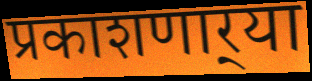
प्रकाशणार्या